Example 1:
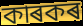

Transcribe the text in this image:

কাৰকৰ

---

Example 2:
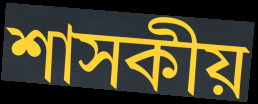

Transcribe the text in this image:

শাসকীয়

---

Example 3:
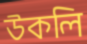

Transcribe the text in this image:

উকলি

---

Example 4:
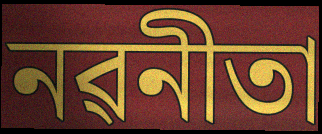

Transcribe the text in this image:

নৱনীতা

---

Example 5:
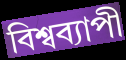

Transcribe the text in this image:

বিশ্বব্যাপী